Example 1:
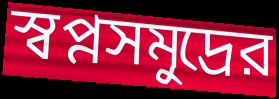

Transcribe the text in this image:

স্বপ্নসমুদ্রের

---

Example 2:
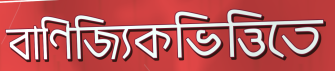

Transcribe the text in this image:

বাণিজ্যিকভিত্তিতে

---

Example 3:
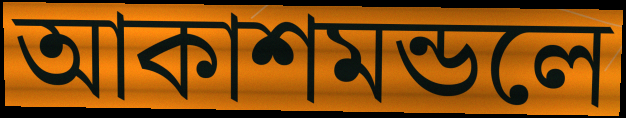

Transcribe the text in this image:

আকাশমন্ডলে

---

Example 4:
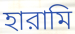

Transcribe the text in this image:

হারামি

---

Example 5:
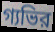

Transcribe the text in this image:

গ্যভির